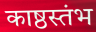
काष्ठस्तंभ